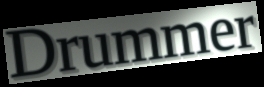
Drummer